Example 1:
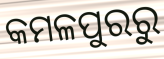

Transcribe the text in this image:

କମଳପୁରରୁ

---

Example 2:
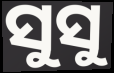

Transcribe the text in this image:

ସୁସୁ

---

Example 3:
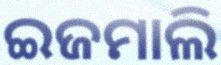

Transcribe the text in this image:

ଇଜମାଲି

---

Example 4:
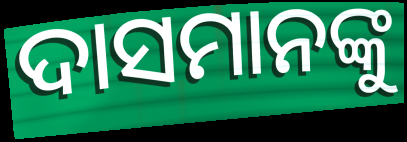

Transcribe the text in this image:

ଦାସମାନଙ୍କୁ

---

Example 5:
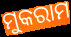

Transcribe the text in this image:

ମୁକରାମ